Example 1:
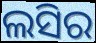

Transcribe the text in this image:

ଲସିର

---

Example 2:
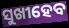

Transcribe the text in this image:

ସୁଖୀହେବ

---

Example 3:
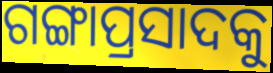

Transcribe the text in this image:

ଗଙ୍ଗାପ୍ରସାଦକୁ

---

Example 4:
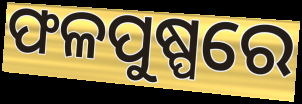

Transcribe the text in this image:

ଫଳପୁଷ୍ପରେ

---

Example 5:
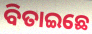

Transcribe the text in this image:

ବିତାଇଛେ